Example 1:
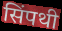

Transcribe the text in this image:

सिंपथी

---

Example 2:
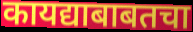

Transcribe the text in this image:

कायद्याबाबतचा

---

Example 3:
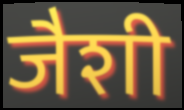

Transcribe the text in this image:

जैशी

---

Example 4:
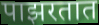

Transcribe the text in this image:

पाझरतात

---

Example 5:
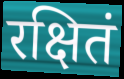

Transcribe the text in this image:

रक्षितं